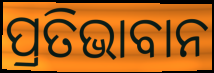
ପ୍ରତିଭାବାନ